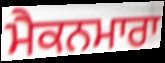
ਮੈਕਨਮਾਰਾ